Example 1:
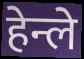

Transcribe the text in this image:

हेन्ले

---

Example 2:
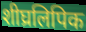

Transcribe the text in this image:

शीघ्रलिपिक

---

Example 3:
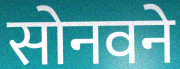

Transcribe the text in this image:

सोनवने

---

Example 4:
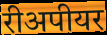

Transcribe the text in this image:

रीअपीयर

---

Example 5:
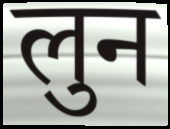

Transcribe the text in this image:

लुन